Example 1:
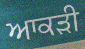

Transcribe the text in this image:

ਆਕੜੀ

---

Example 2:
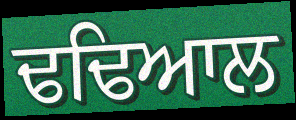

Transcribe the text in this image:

ਢਢਿਆਲ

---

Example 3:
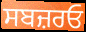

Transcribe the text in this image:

ਸਬਜ਼ਰਓ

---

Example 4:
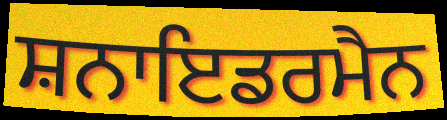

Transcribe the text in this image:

ਸ਼ਨਾਇਡਰਮੈਨ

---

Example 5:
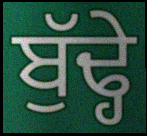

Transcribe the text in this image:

ਬੁੱਢ੍ਹੇ